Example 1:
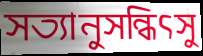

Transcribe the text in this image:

সত্যানুসন্ধিৎসু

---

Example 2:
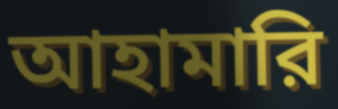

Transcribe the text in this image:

আহামারি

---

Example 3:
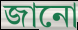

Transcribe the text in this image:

জানো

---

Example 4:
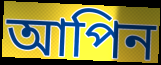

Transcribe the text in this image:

আপিন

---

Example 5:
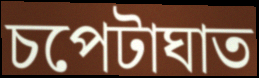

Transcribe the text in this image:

চপেটাঘাত